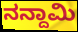
ನನ್ದಾಮಿ